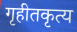
गृहीतकृत्य